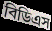
বিডিএস